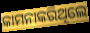
କାମନାକରିଥିଲେ